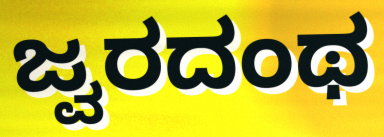
ಜ್ವರದಂಥ